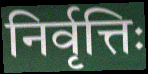
निर्वृत्तिः